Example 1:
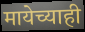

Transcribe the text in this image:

मायेच्याही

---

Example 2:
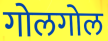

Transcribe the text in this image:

गोलगोल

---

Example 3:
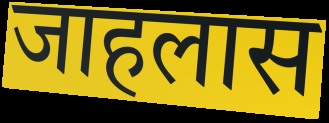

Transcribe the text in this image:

जाहलास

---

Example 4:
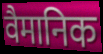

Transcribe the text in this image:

वैमानिक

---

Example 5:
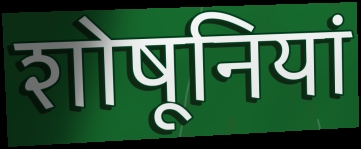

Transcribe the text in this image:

शोषूनियां